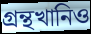
গ্রন্থখানিও